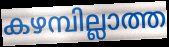
കഴമ്പില്ലാത്ത